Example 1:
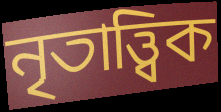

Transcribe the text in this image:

নৃতাত্ত্বিক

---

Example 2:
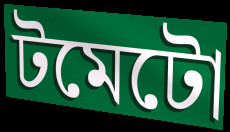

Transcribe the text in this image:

টমেটো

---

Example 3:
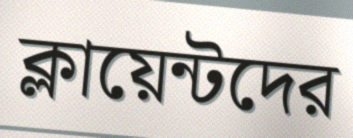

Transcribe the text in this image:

ক্লায়েন্টদের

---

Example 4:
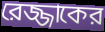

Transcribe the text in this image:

রেজ্জাকের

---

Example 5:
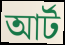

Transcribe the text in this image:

আর্ট